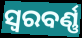
ସ୍ୱରବର୍ଣ୍ଣ